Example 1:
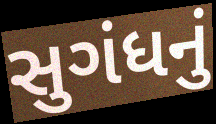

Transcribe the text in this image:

સુગંધનું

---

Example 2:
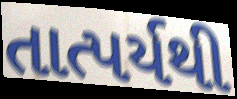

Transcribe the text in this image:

તાત્પર્યથી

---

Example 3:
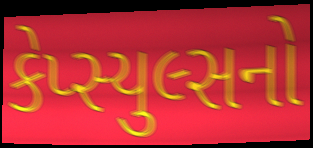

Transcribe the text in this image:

કેપ્સ્યુલ્સનો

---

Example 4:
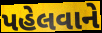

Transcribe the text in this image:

પહેલવાને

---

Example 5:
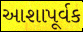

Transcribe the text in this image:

આશાપૂર્વક